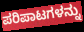
ಪರಿಪಾಟಗಳನ್ನು